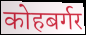
कोहबर्गर